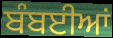
ਬੰਬਈਆਂ